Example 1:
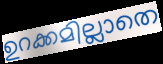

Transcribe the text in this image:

ഉറക്കമില്ലാതെ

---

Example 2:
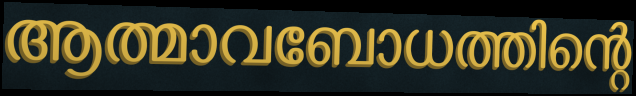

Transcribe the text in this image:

ആത്മാവബോധത്തിന്റെ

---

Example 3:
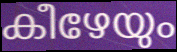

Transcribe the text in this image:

കീഴേയും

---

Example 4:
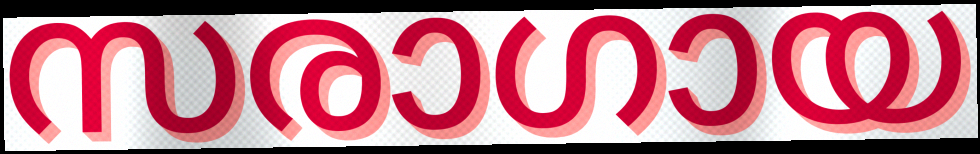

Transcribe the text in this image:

സരാഗായ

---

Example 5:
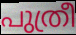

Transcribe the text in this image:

പുത്രീ